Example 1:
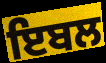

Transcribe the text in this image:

ਇਬਲ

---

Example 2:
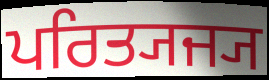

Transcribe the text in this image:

ਪਰਿਤ੍ਯਜ੍ਯ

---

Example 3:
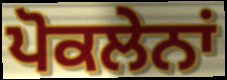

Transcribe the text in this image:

ਪੋਕਲੇਨਾਂ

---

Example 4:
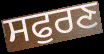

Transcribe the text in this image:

ਸਫੁਰਣ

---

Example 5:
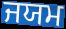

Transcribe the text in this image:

ਜਯਮ